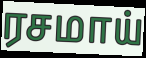
ரசமாய்